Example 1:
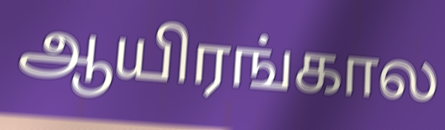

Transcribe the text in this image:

ஆயிரங்கால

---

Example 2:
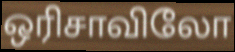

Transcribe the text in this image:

ஒரிசாவிலோ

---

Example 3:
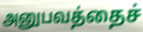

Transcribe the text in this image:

அனுபவத்தைச்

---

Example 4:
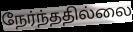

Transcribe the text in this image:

நேர்ந்ததில்லை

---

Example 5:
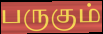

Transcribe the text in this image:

பருகும்